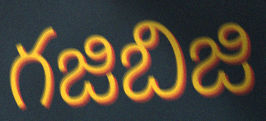
గజిబిజి